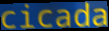
cicada